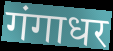
गंगाधर